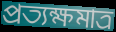
প্রত্যক্ষমাত্র